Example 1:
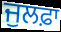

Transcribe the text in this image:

ਜੁਲਫ਼ਾ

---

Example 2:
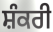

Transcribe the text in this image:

ਸ਼ੰਕਰੀ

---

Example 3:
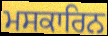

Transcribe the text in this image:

ਮਸਕਾਰਿਨ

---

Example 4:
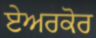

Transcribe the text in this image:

ਏਅਰਕੋਰ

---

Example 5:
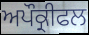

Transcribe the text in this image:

ਅਪੌਕ੍ਰੀਫਲ